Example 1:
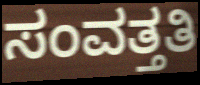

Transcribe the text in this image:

ಸಂವತ್ತತಿ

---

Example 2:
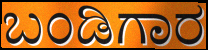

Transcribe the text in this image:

ಬಂಡಿಗಾರ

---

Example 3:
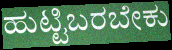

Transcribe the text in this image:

ಹುಟ್ಟಿಬರಬೇಕು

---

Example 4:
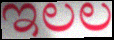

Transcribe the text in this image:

ಇಲಲ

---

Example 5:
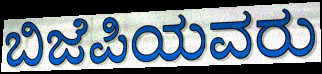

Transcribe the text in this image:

ಬಿಜೆಪಿಯವರು